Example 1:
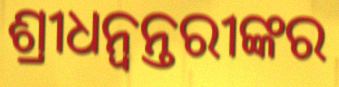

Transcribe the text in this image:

ଶ୍ରୀଧନ୍ୱନ୍ତରୀଙ୍କର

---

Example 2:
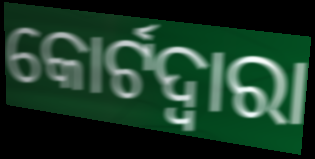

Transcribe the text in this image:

କୋର୍ଟଦ୍ୱାରା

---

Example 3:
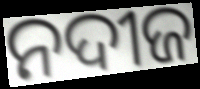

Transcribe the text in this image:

ନଦୀଜ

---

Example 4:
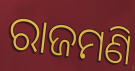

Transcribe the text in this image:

ରାଜମଣି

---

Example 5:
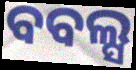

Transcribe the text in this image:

ବବଲ୍ସ